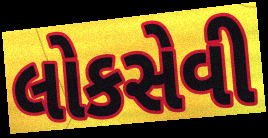
લોકસેવી